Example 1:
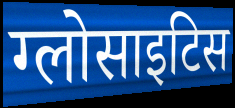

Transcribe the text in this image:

ग्लोसाइटिस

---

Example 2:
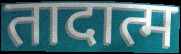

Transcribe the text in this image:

तादात्म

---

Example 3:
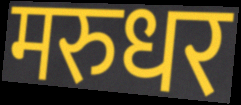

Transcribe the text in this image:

मरुधर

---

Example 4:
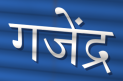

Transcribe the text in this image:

गजेंद्र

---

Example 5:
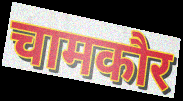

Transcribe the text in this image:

चामकौर